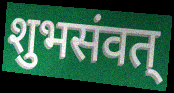
शुभसंवत्